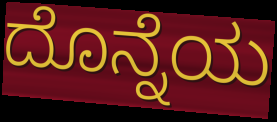
ದೊನ್ನೆಯ